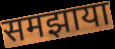
समझाया